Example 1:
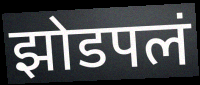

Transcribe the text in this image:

झोडपलं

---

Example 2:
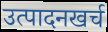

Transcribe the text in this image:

उत्पादनखर्च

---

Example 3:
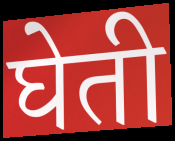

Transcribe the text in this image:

घेती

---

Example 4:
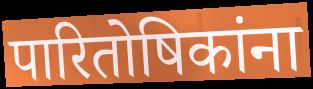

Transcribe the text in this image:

पारितोषिकांना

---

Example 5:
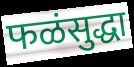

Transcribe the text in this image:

फळंसुद्धा